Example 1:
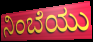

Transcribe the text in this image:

ನಿಂಬೆಯು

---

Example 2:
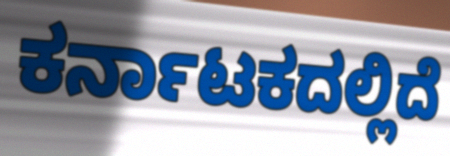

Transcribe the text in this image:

ಕರ್ನಾಟಕದಲ್ಲಿದೆ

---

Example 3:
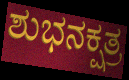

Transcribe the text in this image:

ಶುಭನಕ್ಷತ್ರ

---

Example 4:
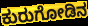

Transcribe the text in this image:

ಕುರುಗೋಡಿನ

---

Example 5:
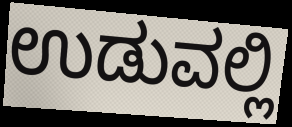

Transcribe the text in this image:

ಉಡುವಲ್ಲಿ